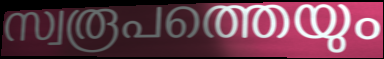
സ്വരൂപത്തെയും